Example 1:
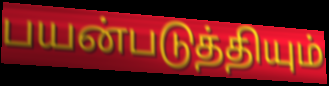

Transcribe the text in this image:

பயன்படுத்தியும்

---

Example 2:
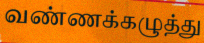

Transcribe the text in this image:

வண்ணக்கழுத்து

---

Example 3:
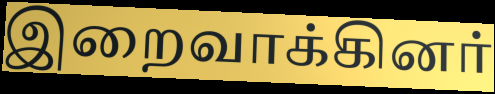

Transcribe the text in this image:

இறைவாக்கினர்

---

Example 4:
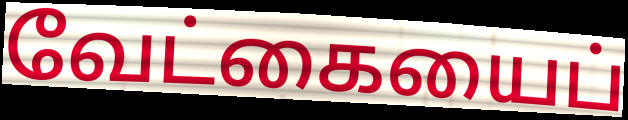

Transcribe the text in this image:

வேட்கையைப்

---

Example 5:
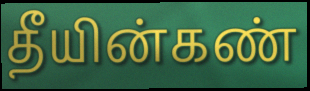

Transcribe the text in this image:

தீயின்கண்